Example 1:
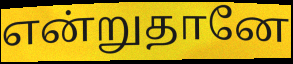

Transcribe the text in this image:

என்றுதானே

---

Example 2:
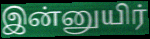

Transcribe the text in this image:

இன்னுயிர்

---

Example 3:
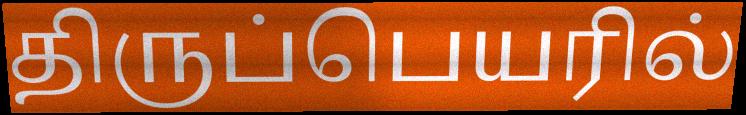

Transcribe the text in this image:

திருப்பெயரில்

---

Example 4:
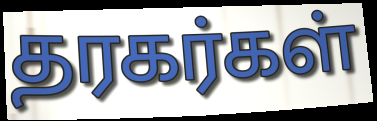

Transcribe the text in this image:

தரகர்கள்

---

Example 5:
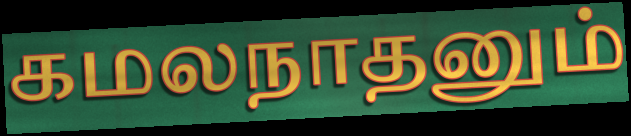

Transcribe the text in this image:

கமலநாதனும்